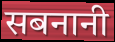
सबनानी